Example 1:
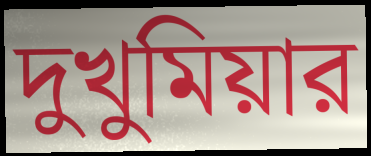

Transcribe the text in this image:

দুখুমিয়ার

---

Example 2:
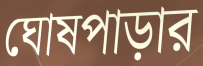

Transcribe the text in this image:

ঘোষপাড়ার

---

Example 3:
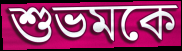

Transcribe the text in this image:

শুভমকে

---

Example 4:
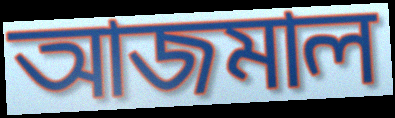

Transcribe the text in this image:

আজমাল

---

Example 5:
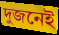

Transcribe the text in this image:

দুজনেই